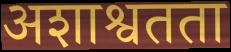
अशाश्वतता